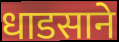
धाडसाने